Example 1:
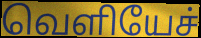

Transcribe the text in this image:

வெளியேச்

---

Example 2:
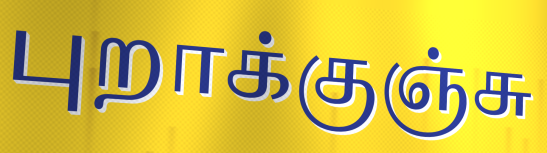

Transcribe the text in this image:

புறாக்குஞ்சு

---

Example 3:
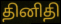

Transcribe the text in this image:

தினிதி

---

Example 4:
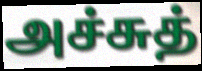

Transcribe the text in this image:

அச்சுத்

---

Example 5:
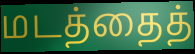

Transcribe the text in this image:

மடத்தைத்